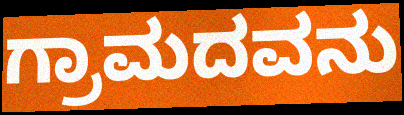
ಗ್ರಾಮದವನು